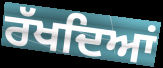
ਰੱਖਦਿਆਂ